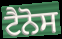
ਟੈਨੋਸ